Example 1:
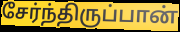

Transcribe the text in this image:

சேர்ந்திருப்பான்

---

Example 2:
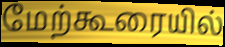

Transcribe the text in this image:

மேற்கூரையில்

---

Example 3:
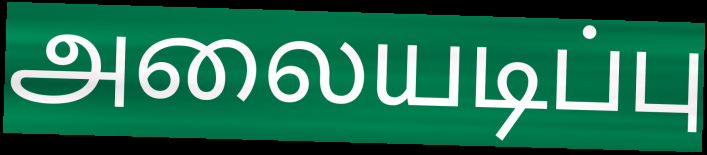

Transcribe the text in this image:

அலையடிப்பு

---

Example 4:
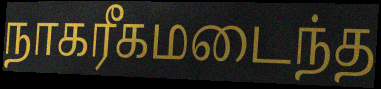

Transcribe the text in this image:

நாகரீகமடைந்த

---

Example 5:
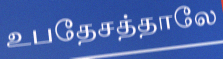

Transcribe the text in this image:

உபதேசத்தாலே